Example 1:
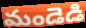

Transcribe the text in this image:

మండెడి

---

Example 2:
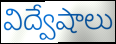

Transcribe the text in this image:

విద్వేషాలు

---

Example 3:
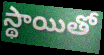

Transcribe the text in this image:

స్థాయితో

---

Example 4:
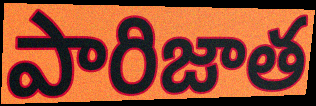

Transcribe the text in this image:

పారిజాత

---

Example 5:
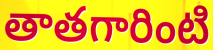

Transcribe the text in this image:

తాతగారింటి